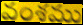
వంశము